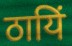
ठायिं